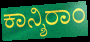
ಕಾನ್ಶಿರಾಂ